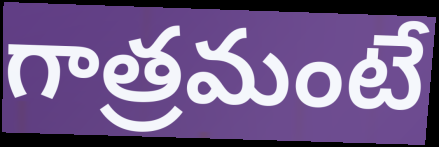
గాత్రమంటే